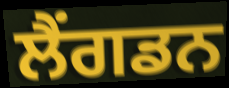
ਲੈਂਗਡਨ